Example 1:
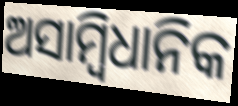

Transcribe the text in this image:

ଅସାମ୍ବିଧାନିକ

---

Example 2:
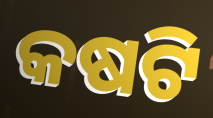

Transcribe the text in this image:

କଷଟି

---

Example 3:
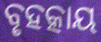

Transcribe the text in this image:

ବୃହତ୍କାୟ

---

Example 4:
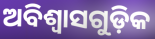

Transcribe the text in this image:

ଅବିଶ୍ଵାସଗୁଡ଼ିକ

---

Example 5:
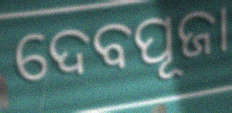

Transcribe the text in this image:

ଦେବପୂଜା